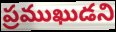
ప్రముఖుడని